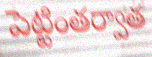
పెట్టింతర్వాత